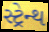
સ્ટ્રેન્થ